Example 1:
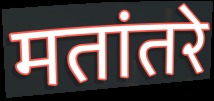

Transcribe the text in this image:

मतांतरे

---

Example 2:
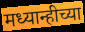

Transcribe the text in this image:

मध्यान्हीच्या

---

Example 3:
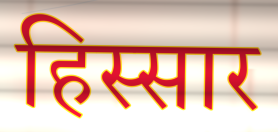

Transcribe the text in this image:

हिस्सार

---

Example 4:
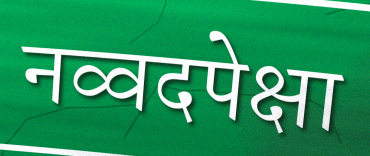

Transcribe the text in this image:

नव्वदपेक्षा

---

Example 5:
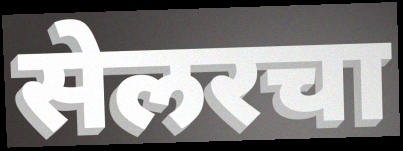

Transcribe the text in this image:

सेलरचा